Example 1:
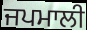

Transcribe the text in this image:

ਜਪਮਾਲੀ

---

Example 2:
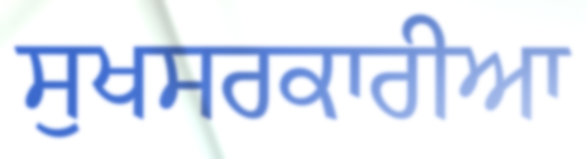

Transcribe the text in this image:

ਸੁਖਸਰਕਾਰੀਆ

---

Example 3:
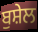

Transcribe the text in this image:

ਬੁਸ਼ੇਲ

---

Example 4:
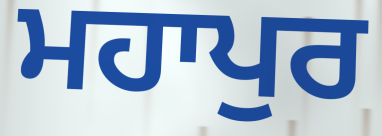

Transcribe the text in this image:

ਮਹਾਪੁਰ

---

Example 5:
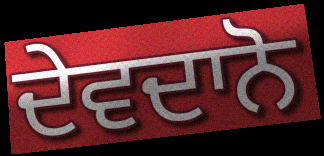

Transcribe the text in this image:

ਦੇਵਦਾਨੋ